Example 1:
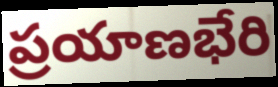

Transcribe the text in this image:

ప్రయాణభేరి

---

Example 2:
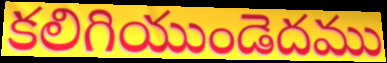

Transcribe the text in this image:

కలిగియుండెదము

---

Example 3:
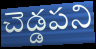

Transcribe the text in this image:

చెడ్డపని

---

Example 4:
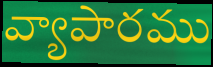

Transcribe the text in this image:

వ్యాపారము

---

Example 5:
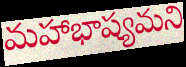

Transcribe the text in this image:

మహాభాష్యమని